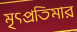
মৃৎপ্রতিমার